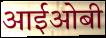
आईओबी